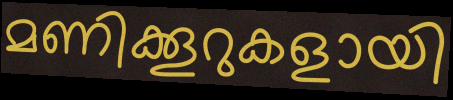
മണിക്കൂറുകളായി